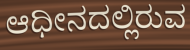
ಆಧೀನದಲ್ಲಿರುವ